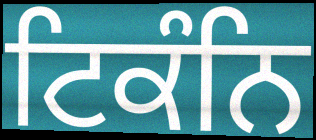
ਟਿਕੰਨਿ